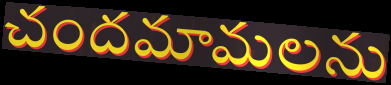
చందమామలను